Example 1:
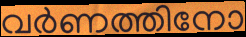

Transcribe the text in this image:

വർണത്തിനോ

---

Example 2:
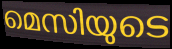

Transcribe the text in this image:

മെസിയുടെ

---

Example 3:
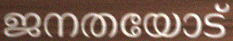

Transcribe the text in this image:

ജനതയോട്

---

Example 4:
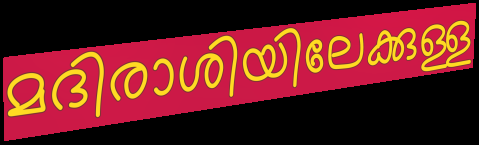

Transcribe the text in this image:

മദിരാശിയിലേക്കുള്ള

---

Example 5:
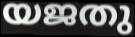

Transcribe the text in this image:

യജതു